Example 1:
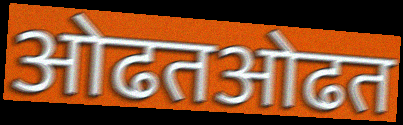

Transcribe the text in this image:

ओढतओढत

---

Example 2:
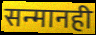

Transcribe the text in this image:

सन्मानही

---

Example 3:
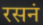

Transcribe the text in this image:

रसनं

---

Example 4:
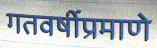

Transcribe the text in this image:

गतवर्षीप्रमाणे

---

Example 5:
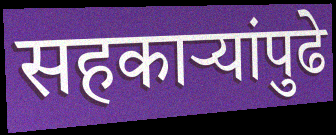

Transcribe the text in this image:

सहकाऱ्यांपुढे